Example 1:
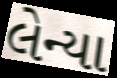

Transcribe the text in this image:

લેન્યા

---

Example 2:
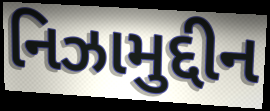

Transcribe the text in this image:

નિઝામુદ્દીન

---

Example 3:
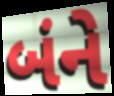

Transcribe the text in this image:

બંને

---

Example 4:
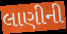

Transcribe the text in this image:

લાણીની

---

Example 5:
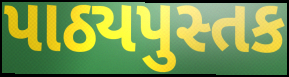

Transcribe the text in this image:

પાઠ્યપુસ્તક